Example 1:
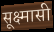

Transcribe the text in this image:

सूक्ष्मासी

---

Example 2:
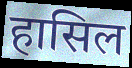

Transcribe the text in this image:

हासिल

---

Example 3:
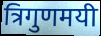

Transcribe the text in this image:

त्रिगुणमयी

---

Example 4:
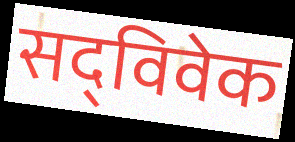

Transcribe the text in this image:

सद्‌विवेक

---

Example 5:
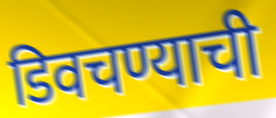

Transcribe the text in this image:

डिवचण्याची